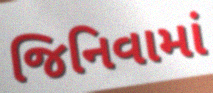
જિનિવામાં